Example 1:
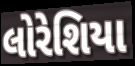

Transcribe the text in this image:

લોરેશિયા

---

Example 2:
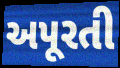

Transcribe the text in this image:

અપૂરતી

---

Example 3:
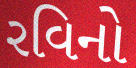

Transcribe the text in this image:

રવિનો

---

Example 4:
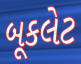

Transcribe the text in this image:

બૂકલેટ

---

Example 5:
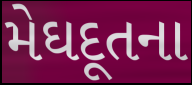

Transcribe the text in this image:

મેઘદૂતના